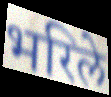
भरिले